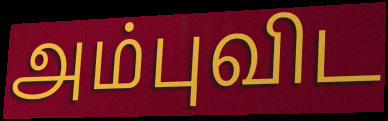
அம்புவிட